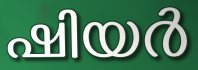
ഷിയർ